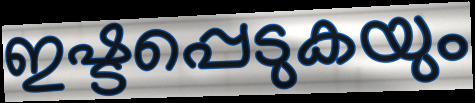
ഇഷ്ടപ്പെടുകയും